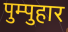
पुम्पुहार